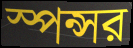
স্পন্সর